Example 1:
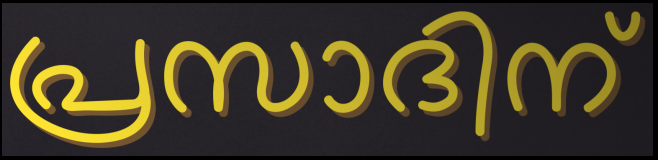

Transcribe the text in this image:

പ്രസാദിന്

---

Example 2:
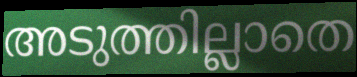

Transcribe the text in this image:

അടുത്തില്ലാതെ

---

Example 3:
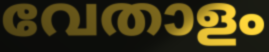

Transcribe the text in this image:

വേതാളം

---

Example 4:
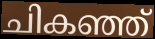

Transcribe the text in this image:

ചികഞ്ഞ്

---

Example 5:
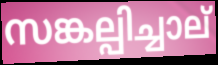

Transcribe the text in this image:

സങ്കല്പിച്ചാല്